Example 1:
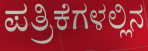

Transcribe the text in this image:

ಪತ್ರಿಕೆಗಳಲ್ಲಿನ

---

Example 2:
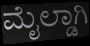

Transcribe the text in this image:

ಮೈಲ್ಡಾಗಿ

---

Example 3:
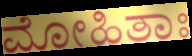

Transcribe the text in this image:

ಮೋಹಿತಾಃ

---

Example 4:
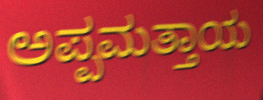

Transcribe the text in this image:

ಅಪ್ಪಮತ್ತಾಯ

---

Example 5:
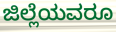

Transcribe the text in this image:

ಜಿಲ್ಲೆಯವರೂ